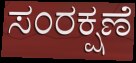
ಸಂರಕ್ಷಣೆ